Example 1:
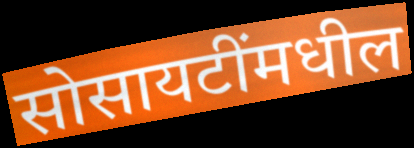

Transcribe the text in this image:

सोसायटींमधील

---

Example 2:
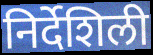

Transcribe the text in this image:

निर्देशिली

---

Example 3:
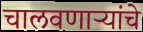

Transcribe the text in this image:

चालवणाऱ्यांचे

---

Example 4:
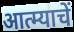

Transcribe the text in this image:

आत्म्याचें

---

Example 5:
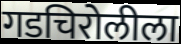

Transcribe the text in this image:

गडचिरोलीला